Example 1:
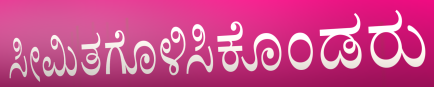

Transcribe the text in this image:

ಸೀಮಿತಗೊಳಿಸಿಕೊಂಡರು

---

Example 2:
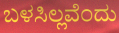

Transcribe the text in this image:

ಬಳಸಿಲ್ಲವೆಂದು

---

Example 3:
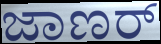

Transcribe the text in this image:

ಜಾಣರ್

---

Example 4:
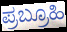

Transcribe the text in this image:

ಪ್ರಬ್ರೂಹಿ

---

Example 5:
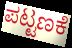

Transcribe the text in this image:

ಪಟ್ಟಣಕೆ